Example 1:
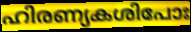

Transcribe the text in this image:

ഹിരണ്യകശിപോഃ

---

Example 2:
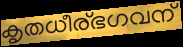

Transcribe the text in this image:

കൃതധീര്ഭഗവന്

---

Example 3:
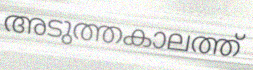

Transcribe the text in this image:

അടുത്തകാലത്ത്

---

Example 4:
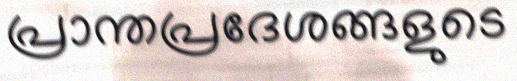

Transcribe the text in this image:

പ്രാന്തപ്രദേശങ്ങളുടെ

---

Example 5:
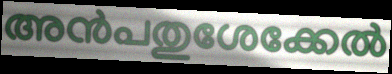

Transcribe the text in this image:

അൻപതുശേക്കേൽ